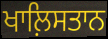
ਖਾਲ਼ਿਸਤਾਨ